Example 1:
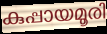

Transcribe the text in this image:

കുപ്പായമൂരി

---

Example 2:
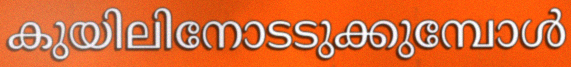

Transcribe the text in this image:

കുയിലിനോടടുക്കുമ്പോൾ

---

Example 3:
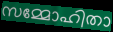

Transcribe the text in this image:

സമ്മോഹിതാ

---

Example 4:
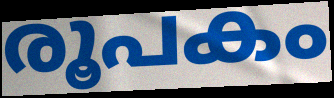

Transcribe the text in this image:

രൂപകം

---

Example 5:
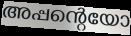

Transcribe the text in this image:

അപ്പന്റെയോ